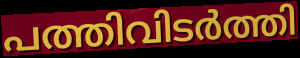
പത്തിവിടർത്തി